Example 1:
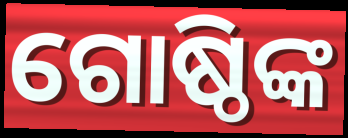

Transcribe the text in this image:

ଗୋଷ୍ଠିଙ୍କ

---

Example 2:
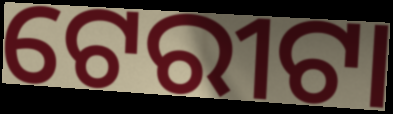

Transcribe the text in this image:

ଟେରୀଟା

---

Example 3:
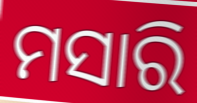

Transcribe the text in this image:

ମସାରି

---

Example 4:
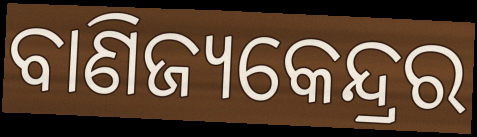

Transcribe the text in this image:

ବାଣିଜ୍ୟକେନ୍ଦ୍ରର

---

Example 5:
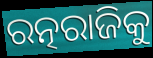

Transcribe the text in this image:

ରତ୍ନରାଜିକୁ